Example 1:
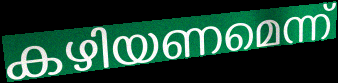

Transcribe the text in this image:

കഴിയണമെന്ന്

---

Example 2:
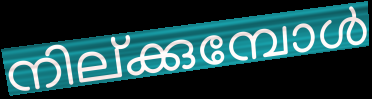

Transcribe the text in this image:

നില്ക്കുമ്പോൾ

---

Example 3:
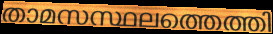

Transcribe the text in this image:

താമസസ്ഥലത്തെത്തി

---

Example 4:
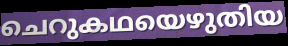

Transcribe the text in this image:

ചെറുകഥയെഴുതിയ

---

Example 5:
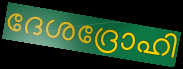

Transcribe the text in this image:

ദേശദ്രോഹി